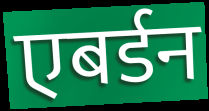
एबर्डन